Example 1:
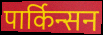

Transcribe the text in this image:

पार्किन्सन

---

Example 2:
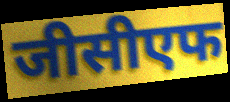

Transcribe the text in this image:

जीसीएफ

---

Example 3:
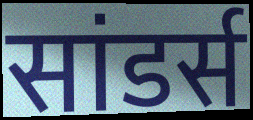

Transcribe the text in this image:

सांडर्स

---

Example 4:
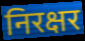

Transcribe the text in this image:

निरक्षर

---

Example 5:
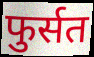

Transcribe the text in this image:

फुर्सत